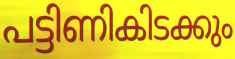
പട്ടിണികിടക്കും